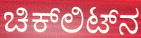
ಚಿಕ್‌ಲಿಟ್‌ನ